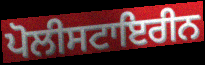
ਪੋਲੀਸਟਾਇਰੀਨ